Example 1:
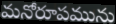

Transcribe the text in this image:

మనోరూపమును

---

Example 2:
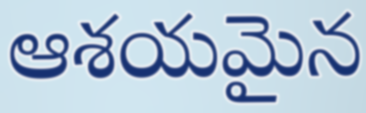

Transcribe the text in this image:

ఆశయమైన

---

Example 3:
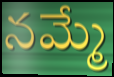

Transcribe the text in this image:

నమ్మే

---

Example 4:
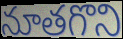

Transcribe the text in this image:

నూతగొని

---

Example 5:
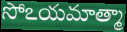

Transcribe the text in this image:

సోఽయమాత్మా